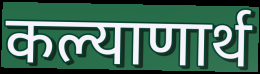
कल्याणार्थ